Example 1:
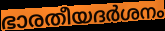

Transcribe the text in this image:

ഭാരതീയദർശനം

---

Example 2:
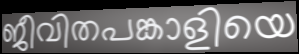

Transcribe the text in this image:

ജീവിതപങ്കാളിയെ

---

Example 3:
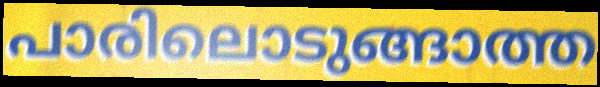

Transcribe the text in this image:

പാരിലൊടുങ്ങാത്ത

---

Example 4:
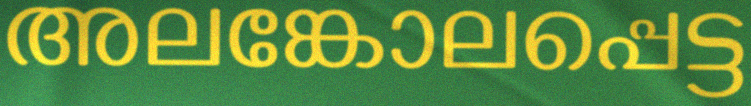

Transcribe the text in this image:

അലങ്കോലപ്പെട്ട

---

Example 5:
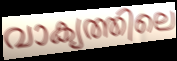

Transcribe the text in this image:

വാക്യത്തിലെ